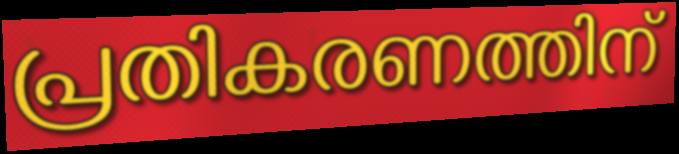
പ്രതികരണത്തിന്